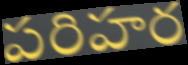
పరిహర